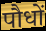
पौधों